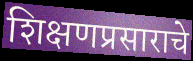
शिक्षणप्रसाराचे